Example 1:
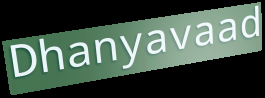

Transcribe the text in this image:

Dhanyavaad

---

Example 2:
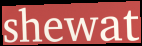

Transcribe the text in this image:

shewat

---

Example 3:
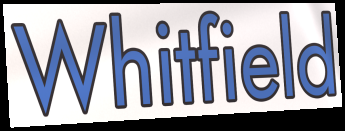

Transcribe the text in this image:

Whitfield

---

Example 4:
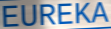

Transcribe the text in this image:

EUREKA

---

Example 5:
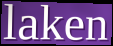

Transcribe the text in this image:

laken